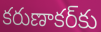
కరుణాకర్‌కు